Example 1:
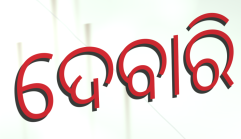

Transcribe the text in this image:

ଦେବାରି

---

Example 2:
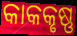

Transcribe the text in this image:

କାକକୃଷ୍ଣ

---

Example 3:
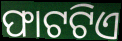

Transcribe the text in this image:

ଫାଟଟିଏ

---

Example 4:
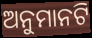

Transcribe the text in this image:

ଅନୁମାନଟି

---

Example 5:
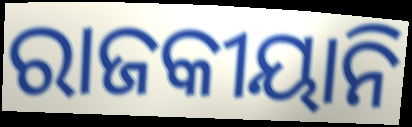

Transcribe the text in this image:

ରାଜକୀୟାନି